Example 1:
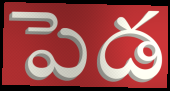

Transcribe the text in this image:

పెడ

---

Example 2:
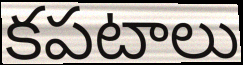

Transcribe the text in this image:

కపటాలు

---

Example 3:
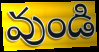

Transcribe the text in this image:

వుండి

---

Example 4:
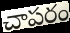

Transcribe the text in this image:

చాపరం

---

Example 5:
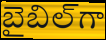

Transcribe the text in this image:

బైబిల్‌గా